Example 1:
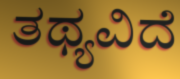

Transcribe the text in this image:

ತಥ್ಯವಿದೆ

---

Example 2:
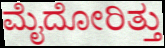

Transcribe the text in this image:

ಮೈದೋರಿತ್ತು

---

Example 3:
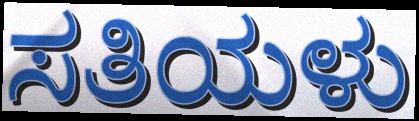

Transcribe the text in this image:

ಸತಿಯಳು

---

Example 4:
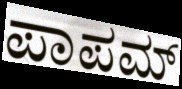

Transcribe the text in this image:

ಪಾಪಮ್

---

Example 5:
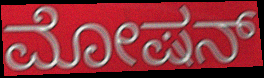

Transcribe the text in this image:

ಮೋಷನ್